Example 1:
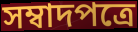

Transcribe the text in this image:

সম্বাদপত্রে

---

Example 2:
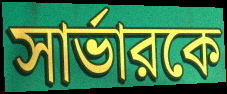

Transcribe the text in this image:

সার্ভারকে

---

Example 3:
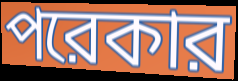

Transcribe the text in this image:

পরেকার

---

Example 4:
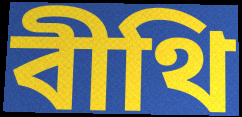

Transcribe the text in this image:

বীথি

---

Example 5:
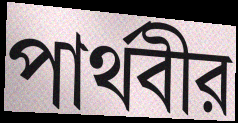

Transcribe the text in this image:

পার্থবীর